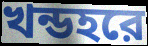
খন্ডহরে